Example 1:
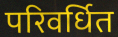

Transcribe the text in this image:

परिवर्धित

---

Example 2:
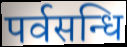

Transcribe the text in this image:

पर्वसन्धि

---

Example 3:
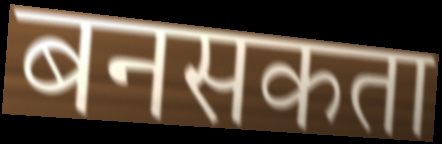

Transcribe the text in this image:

बनसकता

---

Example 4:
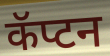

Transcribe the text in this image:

कॅप्टन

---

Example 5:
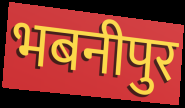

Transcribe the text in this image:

भबनीपुर